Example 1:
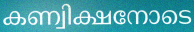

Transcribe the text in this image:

കണ്വിക്ഷനോടെ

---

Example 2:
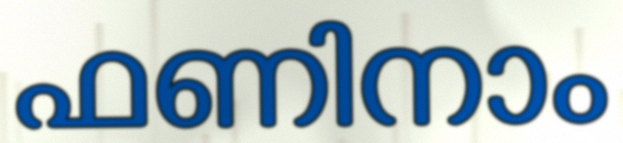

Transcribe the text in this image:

ഫണിനാം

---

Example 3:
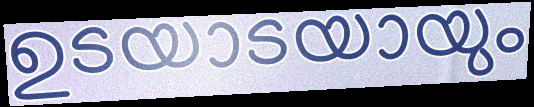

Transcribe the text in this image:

ഉടയാടയായും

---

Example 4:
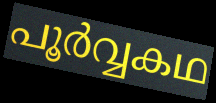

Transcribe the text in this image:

പൂർവ്വകഥ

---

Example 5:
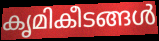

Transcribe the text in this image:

കൃമികീടങ്ങൾ